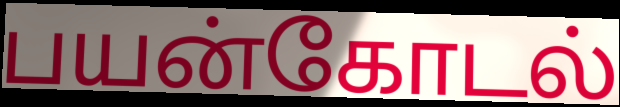
பயன்கோடல்